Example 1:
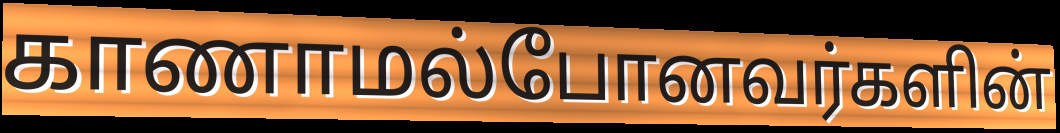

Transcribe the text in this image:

காணாமல்போனவர்களின்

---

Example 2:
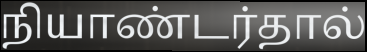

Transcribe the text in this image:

நியாண்டர்தால்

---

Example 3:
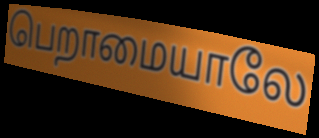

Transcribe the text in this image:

பெறாமையாலே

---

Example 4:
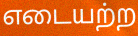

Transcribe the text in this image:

எடையற்ற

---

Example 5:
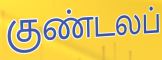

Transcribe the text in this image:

குண்டலப்